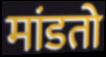
मांडतो